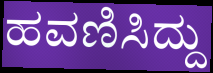
ಹವಣಿಸಿದ್ದು